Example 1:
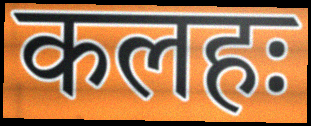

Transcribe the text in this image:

कलहः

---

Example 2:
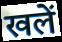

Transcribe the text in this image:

खलें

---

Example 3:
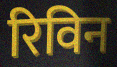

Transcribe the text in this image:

रिविन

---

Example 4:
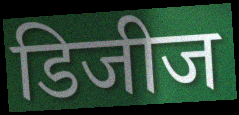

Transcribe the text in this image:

डिजीज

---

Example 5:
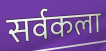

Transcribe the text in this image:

सर्वकला